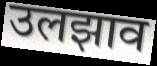
उलझाव